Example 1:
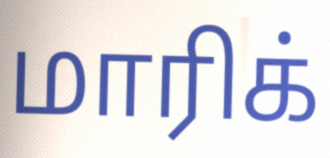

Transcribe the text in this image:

மாரிக்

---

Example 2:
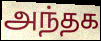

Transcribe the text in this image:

அந்தக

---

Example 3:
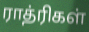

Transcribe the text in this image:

ராத்ரிகள்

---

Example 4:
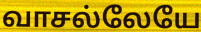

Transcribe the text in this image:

வாசல்லேயே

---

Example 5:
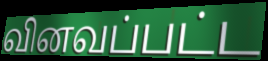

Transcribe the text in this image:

வினவப்பட்ட